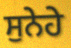
ਸੁਨੇਹੇ